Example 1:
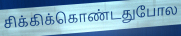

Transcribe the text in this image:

சிக்கிக்கொண்டதுபோல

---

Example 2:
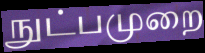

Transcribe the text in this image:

நுட்பமுறை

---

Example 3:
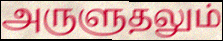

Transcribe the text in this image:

அருளுதலும்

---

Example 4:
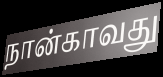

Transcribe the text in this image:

நான்காவது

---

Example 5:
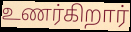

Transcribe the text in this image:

உணர்கிறார்